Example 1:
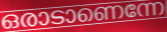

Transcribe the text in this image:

ഒരാടാണെന്നേ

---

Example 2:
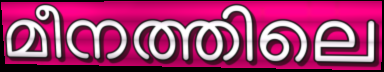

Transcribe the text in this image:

മീനത്തിലെ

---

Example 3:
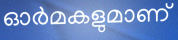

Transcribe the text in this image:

ഓർമകളുമാണ്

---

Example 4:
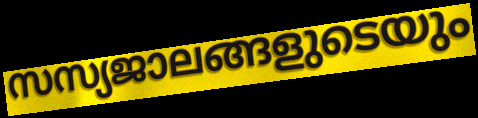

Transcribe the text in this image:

സസ്യജാലങ്ങളുടെയും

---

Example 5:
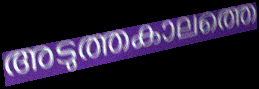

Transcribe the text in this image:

അടുത്തകാലത്തെ